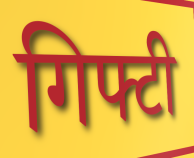
गिफ्टी